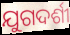
ଯୁଗଦର୍ଶୀ